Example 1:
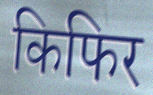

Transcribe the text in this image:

किफिर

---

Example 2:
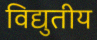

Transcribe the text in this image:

विद्युतीय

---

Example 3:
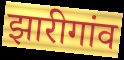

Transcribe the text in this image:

झारीगांव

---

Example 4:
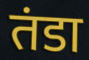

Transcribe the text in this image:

तंडा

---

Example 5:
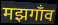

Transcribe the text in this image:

मझगाँव